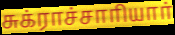
சுக்ராச்சாரியார்